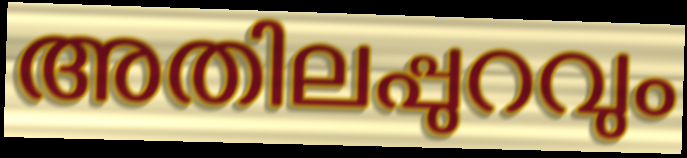
അതിലപ്പുറവും